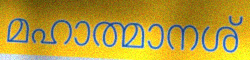
മഹാത്മാനശ്